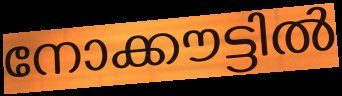
നോക്കൗട്ടിൽ